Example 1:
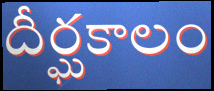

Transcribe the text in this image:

దీర్ఘకాలం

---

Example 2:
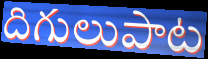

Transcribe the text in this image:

దిగులుపాట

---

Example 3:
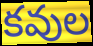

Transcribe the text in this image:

కవుల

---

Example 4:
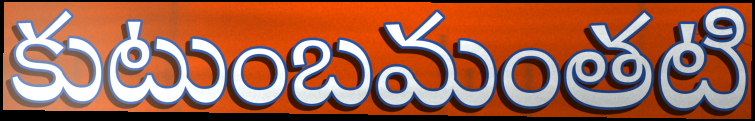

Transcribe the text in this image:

కుటుంబమంతటి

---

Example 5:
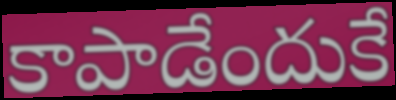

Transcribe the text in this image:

కాపాడేందుకే